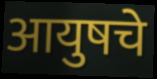
आयुषचे